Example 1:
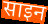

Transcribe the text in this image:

साइन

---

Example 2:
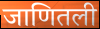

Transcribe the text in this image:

जाणितली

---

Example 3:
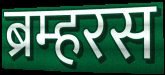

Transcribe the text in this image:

ब्रम्हरस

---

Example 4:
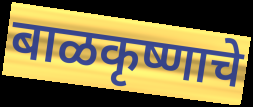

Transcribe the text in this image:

बाळकृष्णाचे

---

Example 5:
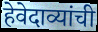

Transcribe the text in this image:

हेवेदाव्यांची